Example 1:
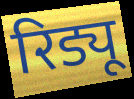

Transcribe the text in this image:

रिड्यू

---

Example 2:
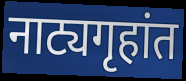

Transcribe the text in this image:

नाट्यगृहांत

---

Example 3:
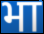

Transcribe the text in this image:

भा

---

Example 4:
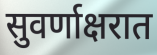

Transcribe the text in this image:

सुवर्णाक्षरात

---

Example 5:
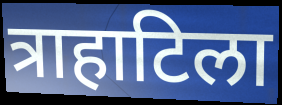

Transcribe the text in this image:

त्राहाटिला